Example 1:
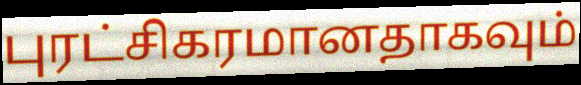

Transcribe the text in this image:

புரட்சிகரமானதாகவும்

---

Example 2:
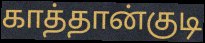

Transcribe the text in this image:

காத்தான்குடி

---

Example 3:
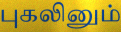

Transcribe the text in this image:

புகலினும்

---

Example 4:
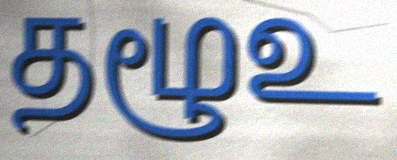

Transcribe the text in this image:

தழூஉ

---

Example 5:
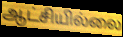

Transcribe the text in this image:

ஆட்சியில்லை